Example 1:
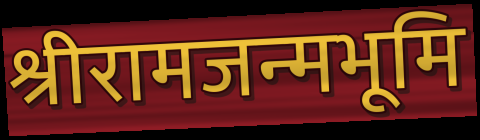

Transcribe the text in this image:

श्रीरामजन्मभूमि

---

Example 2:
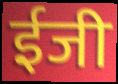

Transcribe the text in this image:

ईजी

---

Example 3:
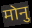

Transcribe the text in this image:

मोनु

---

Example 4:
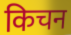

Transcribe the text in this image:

किचन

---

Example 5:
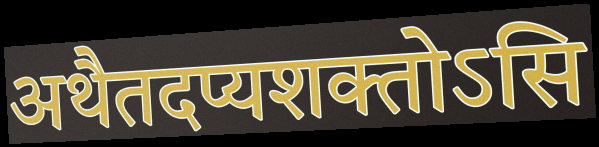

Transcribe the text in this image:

अथैतदप्यशक्तोऽसि